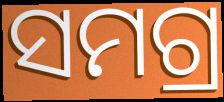
ସମଗ୍ର